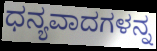
ಧನ್ಯವಾದಗಳನ್ನ